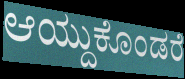
ಆಯ್ದುಕೊಂಡರೆ